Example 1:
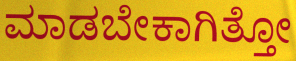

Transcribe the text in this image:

ಮಾಡಬೇಕಾಗಿತ್ತೋ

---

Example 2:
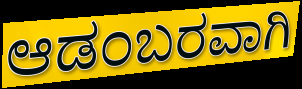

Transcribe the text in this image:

ಆಡಂಬರವಾಗಿ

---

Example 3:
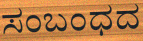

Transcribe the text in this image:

ಸಂಬಂಧದ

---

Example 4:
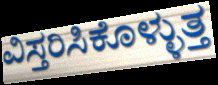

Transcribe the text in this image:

ವಿಸ್ತರಿಸಿಕೊಳ್ಳುತ್ತ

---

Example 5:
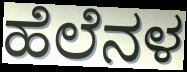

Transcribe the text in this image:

ಹೆಲೆನಳ